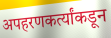
अपहरणकर्त्यांकडून